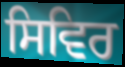
ਸਿਵਿਰ